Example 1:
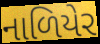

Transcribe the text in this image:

નાળિયેર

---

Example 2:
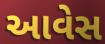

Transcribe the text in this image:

આવેસ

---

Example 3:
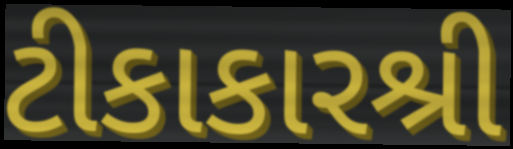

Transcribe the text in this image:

ટીકાકારશ્રી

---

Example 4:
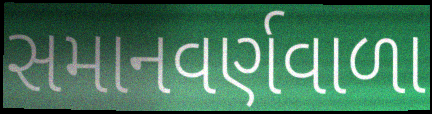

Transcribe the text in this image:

સમાનવર્ણવાળા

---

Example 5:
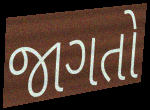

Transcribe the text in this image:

જાગતો